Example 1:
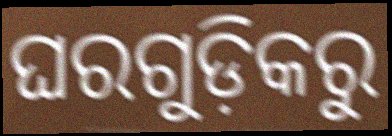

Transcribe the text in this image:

ଘରଗୁଡ଼ିକରୁ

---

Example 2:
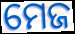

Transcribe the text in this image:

ମେଜ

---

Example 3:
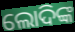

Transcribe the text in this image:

ଲୋଦିଙ୍କ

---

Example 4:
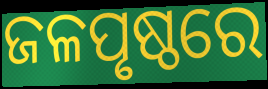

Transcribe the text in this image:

ଜଳପୃଷ୍ଠରେ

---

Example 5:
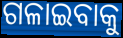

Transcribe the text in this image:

ଗଳାଇବାକୁ